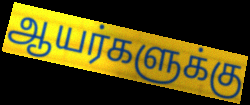
ஆயர்களுக்கு